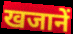
खजानें